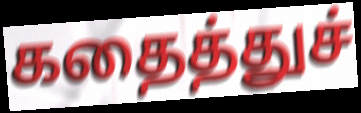
கதைத்துச்